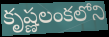
కృష్ణలంకలోని